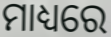
ମାଧ୍ୟରେ